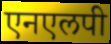
एनएलपी